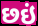
છઇં